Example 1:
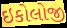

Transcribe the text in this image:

ઇકોલોજી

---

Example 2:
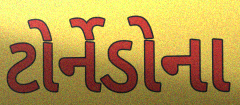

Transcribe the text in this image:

ટોર્નેડોના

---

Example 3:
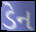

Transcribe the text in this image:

ડેન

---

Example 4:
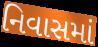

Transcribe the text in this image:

નિવાસમાં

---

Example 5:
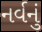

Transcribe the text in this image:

નર્વનું